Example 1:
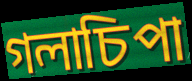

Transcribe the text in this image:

গলাচিপা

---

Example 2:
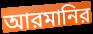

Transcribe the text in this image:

আরমানির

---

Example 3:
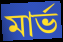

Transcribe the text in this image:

মার্ভ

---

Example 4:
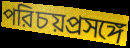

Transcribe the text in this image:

পরিচয়প্রসঙ্গে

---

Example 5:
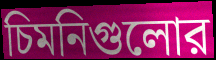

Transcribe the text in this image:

চিমনিগুলোর